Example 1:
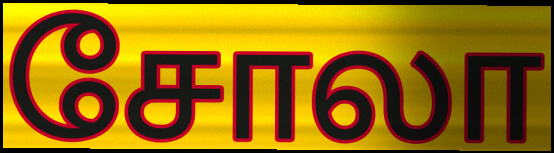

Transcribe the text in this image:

சோலா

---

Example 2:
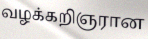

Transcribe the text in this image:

வழக்கறிஞரான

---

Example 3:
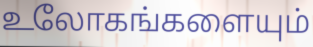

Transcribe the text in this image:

உலோகங்களையும்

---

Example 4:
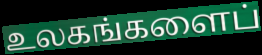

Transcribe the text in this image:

உலகங்களைப்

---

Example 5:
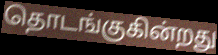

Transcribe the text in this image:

தொடங்குகின்றது